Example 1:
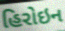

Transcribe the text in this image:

હિરોઇન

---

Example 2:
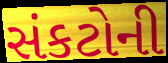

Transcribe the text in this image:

સંકટોની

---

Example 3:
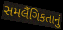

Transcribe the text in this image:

સમલૈંગિકતાનું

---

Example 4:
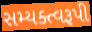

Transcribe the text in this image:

સમ્યક્ત્વરૂપી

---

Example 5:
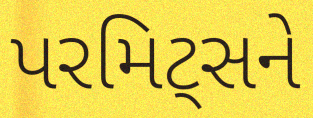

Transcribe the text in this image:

પરમિટ્સને